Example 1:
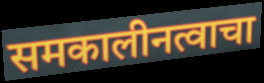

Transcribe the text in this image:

समकालीनत्वाचा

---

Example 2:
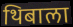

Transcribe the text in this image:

थिबाला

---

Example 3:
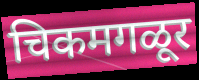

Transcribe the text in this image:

चिकमगळूर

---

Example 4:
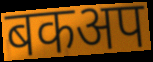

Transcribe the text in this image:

बकअप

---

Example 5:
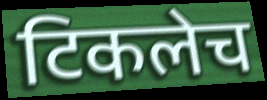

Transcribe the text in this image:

टिकलेच